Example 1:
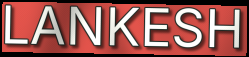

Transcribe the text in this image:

LANKESH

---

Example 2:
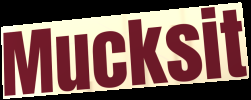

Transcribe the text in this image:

Mucksit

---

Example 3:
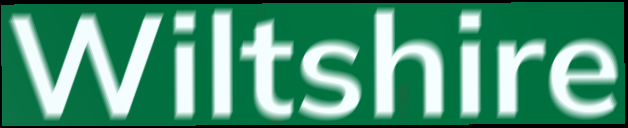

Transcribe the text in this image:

Wiltshire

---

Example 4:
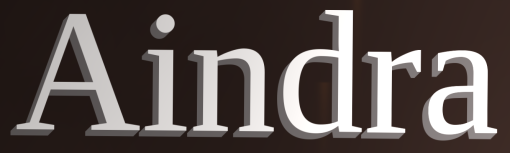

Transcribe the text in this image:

Aindra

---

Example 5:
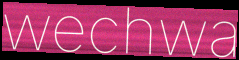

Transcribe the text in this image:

wechwa